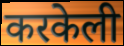
करकेली